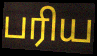
பரிய